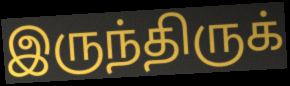
இருந்திருக்